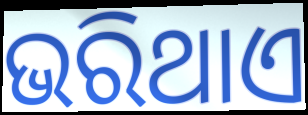
ଭରିଥାଏ